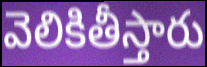
వెలికితీస్తారు